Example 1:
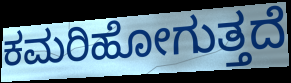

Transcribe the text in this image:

ಕಮರಿಹೋಗುತ್ತದೆ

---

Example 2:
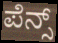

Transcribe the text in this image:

ಪೆನ್ಸ್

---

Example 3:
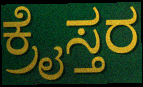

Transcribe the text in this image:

ಕ್ರೈಸ್ತರ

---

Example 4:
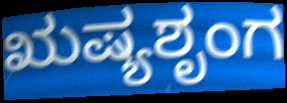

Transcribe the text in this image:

ಋಷ್ಯಶೃಂಗ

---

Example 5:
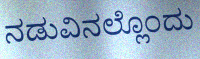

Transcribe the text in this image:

ನಡುವಿನಲ್ಲೊಂದು